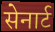
सेनार्ट